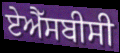
ਏਐੱਸਬੀਸੀ